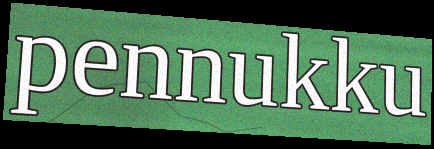
pennukku